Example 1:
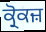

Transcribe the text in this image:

ਕ੍ਰੋਕਜ਼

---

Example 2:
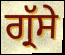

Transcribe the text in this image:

ਗ੍ਰੱਸੇ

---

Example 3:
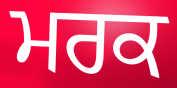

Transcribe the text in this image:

ਮਰਕ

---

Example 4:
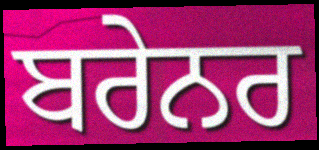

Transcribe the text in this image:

ਬਰੇਨਰ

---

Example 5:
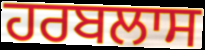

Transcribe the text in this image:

ਹਰਬਲਾਸ